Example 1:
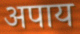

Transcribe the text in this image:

अपाय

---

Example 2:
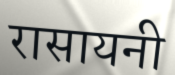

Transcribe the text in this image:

रासायनी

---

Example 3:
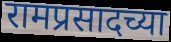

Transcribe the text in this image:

रामप्रसादच्या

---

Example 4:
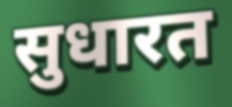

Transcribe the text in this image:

सुधारत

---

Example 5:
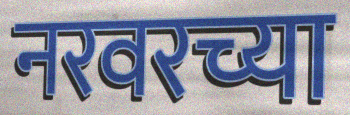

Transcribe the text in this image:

नरवरच्या